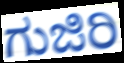
ಗುಜಿರಿ